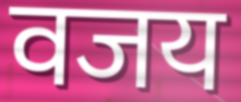
वजय